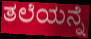
ತಲೆಯನ್ನೆ